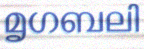
മൃഗബലി